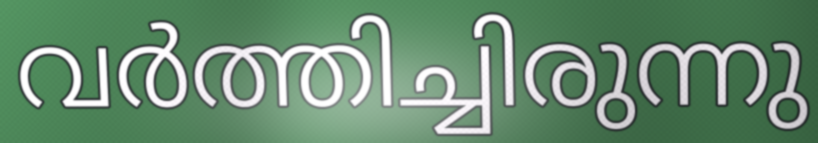
വർത്തിച്ചിരുന്നു